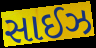
સાઈઝ